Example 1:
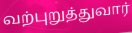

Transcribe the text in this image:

வற்புறுத்துவார்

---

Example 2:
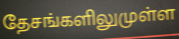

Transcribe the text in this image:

தேசங்களிலுமுள்ள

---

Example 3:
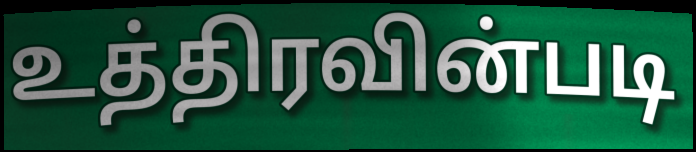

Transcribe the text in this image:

உத்திரவின்படி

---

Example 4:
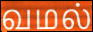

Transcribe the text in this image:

வமல்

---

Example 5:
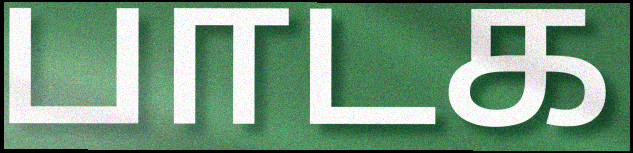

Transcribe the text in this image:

பாடக